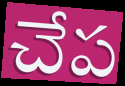
చేప